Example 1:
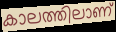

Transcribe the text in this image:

കാലത്തിലാണ്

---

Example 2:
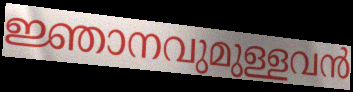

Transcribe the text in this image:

ജ്ഞാനവുമുള്ളവൻ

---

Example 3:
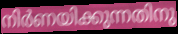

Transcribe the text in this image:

നിർണയിക്കുന്നതിനു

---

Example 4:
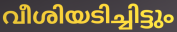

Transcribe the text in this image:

വീശിയടിച്ചിട്ടും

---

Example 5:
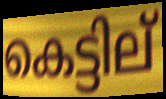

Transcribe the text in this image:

കെട്ടില്